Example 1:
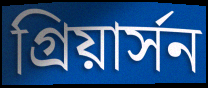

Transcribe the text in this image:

গ্রিয়ার্সন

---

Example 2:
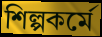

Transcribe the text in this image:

শিল্পকর্মে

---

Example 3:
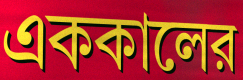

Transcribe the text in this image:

এককালের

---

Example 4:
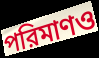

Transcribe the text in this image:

পরিমাণও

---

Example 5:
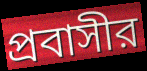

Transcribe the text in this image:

প্রবাসীর